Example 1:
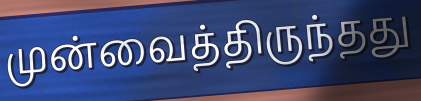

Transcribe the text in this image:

முன்வைத்திருந்தது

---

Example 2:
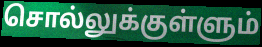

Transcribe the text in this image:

சொல்லுக்குள்ளும்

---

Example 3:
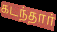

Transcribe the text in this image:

கடந்தார்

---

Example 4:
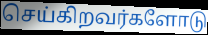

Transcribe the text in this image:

செய்கிறவர்களோடு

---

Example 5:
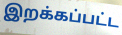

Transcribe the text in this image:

இறக்கப்பட்ட